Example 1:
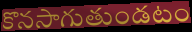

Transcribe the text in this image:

కొనసాగుతుండటం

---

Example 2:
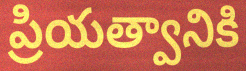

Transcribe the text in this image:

ప్రియత్వానికి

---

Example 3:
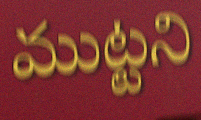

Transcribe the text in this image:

ముట్టని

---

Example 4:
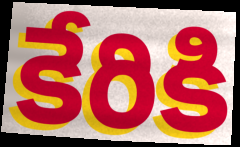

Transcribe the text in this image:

కేరికి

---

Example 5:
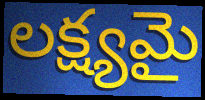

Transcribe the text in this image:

లక్ష్యమై